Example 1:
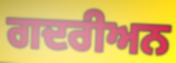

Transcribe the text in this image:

ਗਦਰੀਅਨ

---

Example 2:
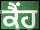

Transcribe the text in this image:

ਕੈਂਹ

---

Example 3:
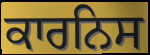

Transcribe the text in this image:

ਕਾਰਨਿਸ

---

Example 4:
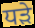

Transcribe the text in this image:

ਧੜੇ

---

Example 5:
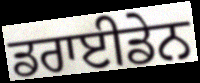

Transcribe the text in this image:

ਡਰਾਈਡੇਨ